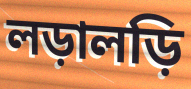
লড়ালড়ি